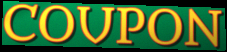
COUPON